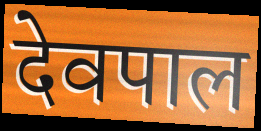
देवपाल